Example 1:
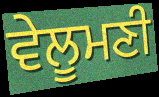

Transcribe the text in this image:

ਵੇਲੂਮਣੀ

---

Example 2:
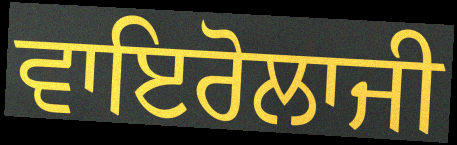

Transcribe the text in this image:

ਵਾਇਰੋਲਾਜੀ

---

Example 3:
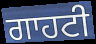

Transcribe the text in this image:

ਗਾਹਟੀ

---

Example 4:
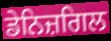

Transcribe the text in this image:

ਡੇਨਿਜ਼ਗਿਲ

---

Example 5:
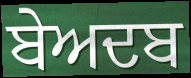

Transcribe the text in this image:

ਬੇਅਦਬ